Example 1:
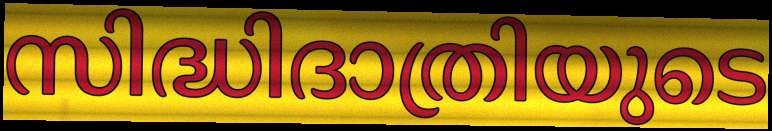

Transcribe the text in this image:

സിദ്ധിദാത്രിയുടെ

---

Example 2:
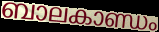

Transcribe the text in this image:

ബാലകാണ്ഡം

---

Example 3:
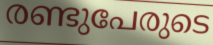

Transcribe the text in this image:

രണ്ടുപേരുടെ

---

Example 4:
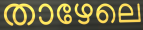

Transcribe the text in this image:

താഴേലെ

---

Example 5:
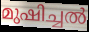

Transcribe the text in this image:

മുഷിച്ചൽ